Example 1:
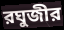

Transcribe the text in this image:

রঘুজীর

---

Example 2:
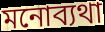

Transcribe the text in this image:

মনোব্যথা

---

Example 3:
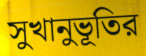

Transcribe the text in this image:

সুখানুভূতির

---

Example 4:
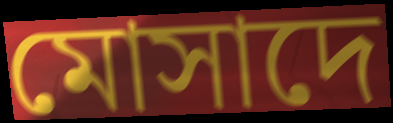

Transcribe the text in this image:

মোসাদে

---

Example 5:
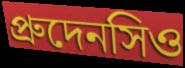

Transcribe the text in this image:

প্রুদেনসিও